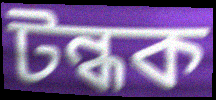
টন্ধক